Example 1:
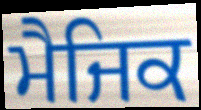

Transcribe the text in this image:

ਮੈਜਿਕ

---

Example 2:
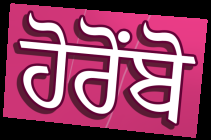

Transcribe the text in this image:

ਹੋਰੋਂਬੋ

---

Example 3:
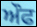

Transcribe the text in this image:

ਔਫ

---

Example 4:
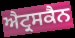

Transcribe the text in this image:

ਐਟ੍ਰਸਕੈਨ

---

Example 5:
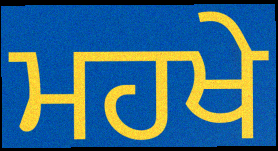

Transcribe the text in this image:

ਮਹਖੇ